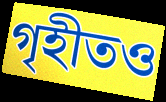
গৃহীতও